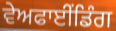
ਵੇਅਫਾਈਂਡਿੰਗ